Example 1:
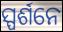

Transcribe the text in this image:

ସ୍ପର୍ଶନେ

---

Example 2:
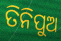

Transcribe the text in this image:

ତିନିପୁଅ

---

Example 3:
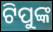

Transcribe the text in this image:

ଟିପୁଙ୍କ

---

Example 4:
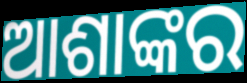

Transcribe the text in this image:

ଆଶାଙ୍କର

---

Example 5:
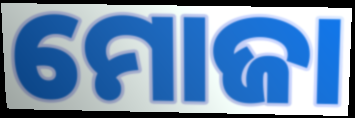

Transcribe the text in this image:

ମୋଜା